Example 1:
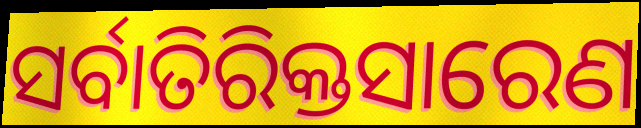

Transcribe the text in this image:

ସର୍ବାତିରିକ୍ତସାରେଣ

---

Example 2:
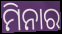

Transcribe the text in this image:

ମିନାର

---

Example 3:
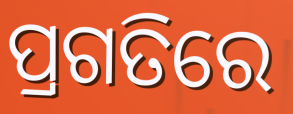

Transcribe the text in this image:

ପ୍ରଗତିରେ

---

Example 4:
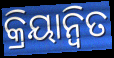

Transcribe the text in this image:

କ୍ରିୟାନ୍ୱିତ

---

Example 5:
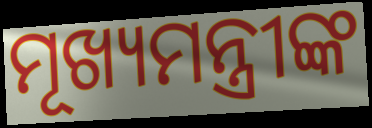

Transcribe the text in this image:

ମୂଖ୍ୟମନ୍ତ୍ରୀଙ୍କ